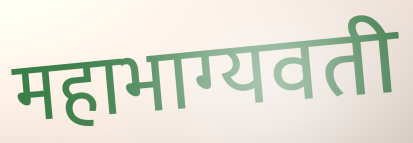
महाभाग्यवती